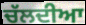
ਚੱਲਦੀਆ